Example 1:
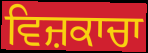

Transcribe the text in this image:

ਵਿਜ਼ਕਾਚਾ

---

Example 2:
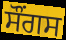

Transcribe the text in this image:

ਸੌਂਗਸ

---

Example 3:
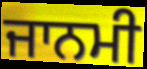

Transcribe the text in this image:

ਜਾਨਮੀ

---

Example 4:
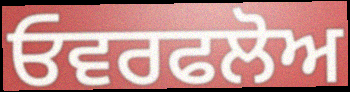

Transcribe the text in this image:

ਓਵਰਫਲੋਅ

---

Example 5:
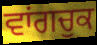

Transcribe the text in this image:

ਵਾਂਗਚੁਕ